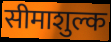
सीमाशुल्क